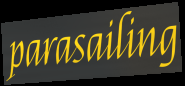
parasailing